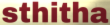
sthitha